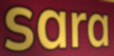
sara